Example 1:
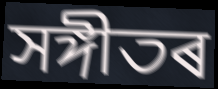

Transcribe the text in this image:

সঙ্গীতৰ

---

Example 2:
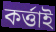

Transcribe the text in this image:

কৰ্ত্তাই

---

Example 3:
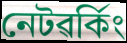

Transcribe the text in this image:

নেটৱৰ্কিং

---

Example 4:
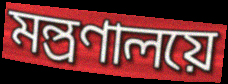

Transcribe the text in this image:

মন্ত্ৰণালয়ে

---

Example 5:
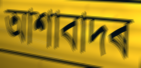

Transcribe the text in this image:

আশাবাদৰ